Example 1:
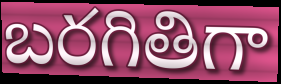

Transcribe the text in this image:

బరగితిగా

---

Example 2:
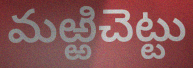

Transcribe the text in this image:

మఱ్ఱిచెట్టు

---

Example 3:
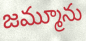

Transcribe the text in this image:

జమ్మూను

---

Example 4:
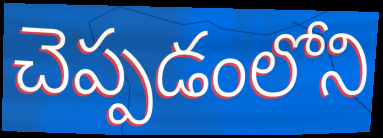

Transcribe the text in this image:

చెప్పడంలోని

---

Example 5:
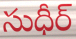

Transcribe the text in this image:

సుధీర్